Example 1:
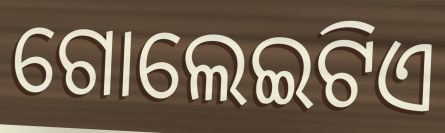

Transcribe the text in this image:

ଗୋଲେଇଟିଏ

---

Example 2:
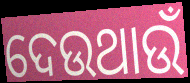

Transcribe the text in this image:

ଦେଉଥାଉଁ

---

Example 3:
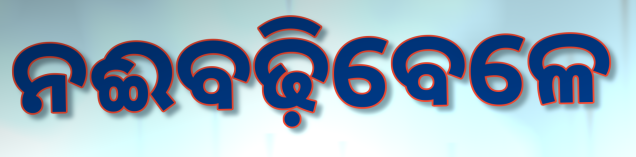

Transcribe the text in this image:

ନଈବଢ଼ିବେଳେ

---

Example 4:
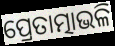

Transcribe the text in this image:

ପ୍ରେତାତ୍ମାଭଳି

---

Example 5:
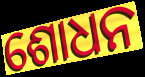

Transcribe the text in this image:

ଶୋଧନ